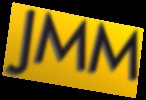
JMM